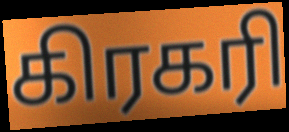
கிரகரி